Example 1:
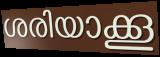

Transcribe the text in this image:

ശരിയാക്കൂ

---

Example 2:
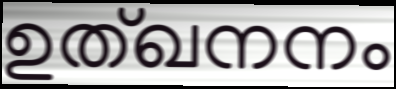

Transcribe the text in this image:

ഉത്ഖനനം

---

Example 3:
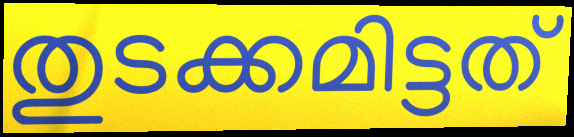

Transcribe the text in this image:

തുടക്കമിട്ടത്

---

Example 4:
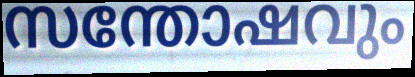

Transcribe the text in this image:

സന്തോഷവും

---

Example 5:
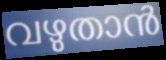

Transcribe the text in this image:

വഴുതാൻ